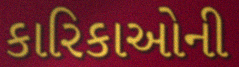
કારિકાઓની